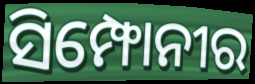
ସିମ୍ଫୋନୀର